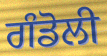
ਗੰਡੋਲੀ